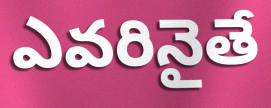
ఎవరినైతే